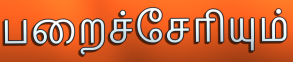
பறைச்சேரியும்